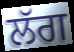
ਲੱਗ